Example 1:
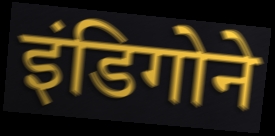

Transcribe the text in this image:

इंडिगोने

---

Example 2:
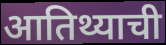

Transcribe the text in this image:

आतिथ्याची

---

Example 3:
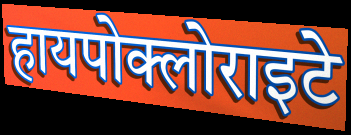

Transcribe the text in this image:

हायपोक्लोराइटे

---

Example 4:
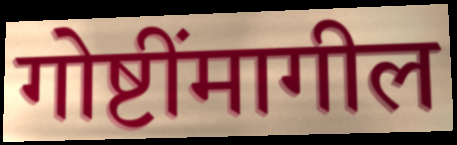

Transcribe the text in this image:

गोष्टींमागील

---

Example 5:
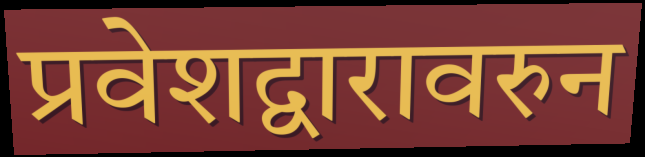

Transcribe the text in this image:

प्रवेशद्वारावरुन